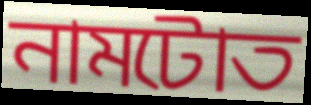
নামটোত